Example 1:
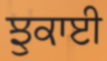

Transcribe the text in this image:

ਝੁਕਾਈ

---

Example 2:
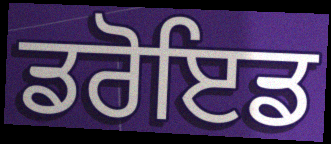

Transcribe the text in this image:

ਡਰੋਇਡ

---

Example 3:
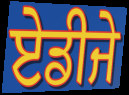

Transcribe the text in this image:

ਏਡੀਜੇ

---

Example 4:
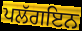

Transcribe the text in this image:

ਪਲੱਗਇਨ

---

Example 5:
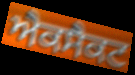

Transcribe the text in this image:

ਐਕਸੈਕਟ